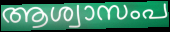
ആശ്വാസംപ